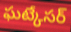
ఘట్కేసర్